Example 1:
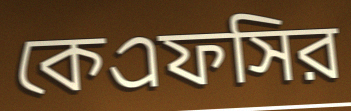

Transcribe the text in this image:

কেএফসির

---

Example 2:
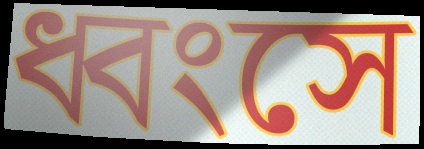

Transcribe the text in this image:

ধ্বংসে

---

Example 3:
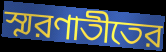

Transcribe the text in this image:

স্মরণাতীতের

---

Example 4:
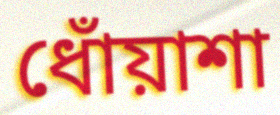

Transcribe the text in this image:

ধোঁয়াশা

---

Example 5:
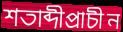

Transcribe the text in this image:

শতাব্দীপ্রাচীন